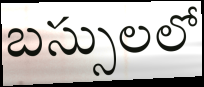
బస్సులలో